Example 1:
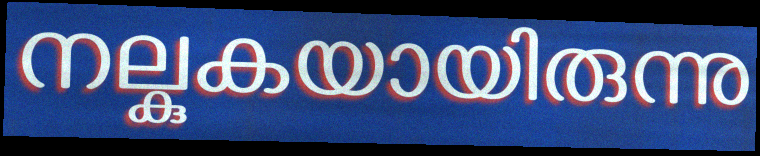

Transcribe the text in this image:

നല്കുകയായിരുന്നു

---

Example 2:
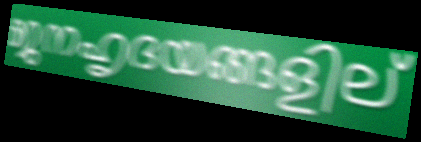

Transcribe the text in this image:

ജനഹൃദയങ്ങളില്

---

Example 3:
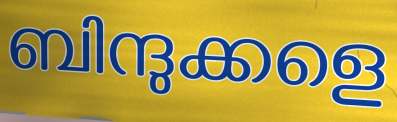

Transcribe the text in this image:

ബിന്ദുക്കളെ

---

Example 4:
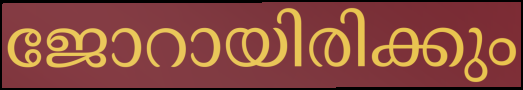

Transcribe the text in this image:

ജോറായിരിക്കും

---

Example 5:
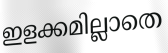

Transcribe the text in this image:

ഇളക്കമില്ലാതെ